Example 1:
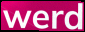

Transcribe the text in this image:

werd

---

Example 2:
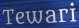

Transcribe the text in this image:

Tewari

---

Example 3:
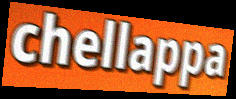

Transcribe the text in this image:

chellappa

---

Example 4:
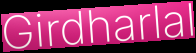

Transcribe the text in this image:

Girdharlal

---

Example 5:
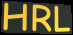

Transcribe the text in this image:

HRL